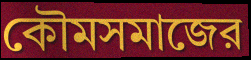
কৌমসমাজের